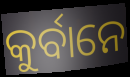
କୁର୍ବାନେ